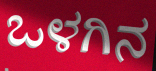
ಒಳಗಿನ